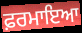
ਫ਼ਰਮਾਇਆ